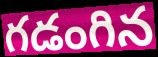
గడంగిన